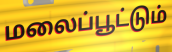
மலைப்பூட்டும்